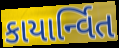
કાયાર્ન્વિત